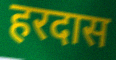
हरदास